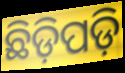
ଛିଡ଼ିପଡ଼ି